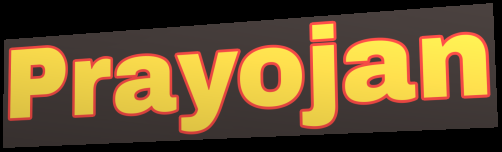
Prayojan